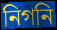
নিগনি